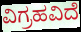
ವಿಗ್ರಹವಿದೆ